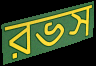
রভস